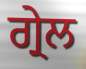
ਗ੍ਰੇਲ